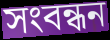
সংবন্ধন